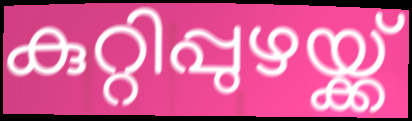
കുറ്റിപ്പുഴയ്ക്ക്